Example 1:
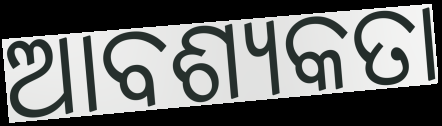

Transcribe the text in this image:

ଆବଶ୍ୟକତା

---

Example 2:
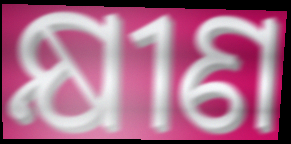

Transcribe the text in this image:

କ୍ଷୀଣ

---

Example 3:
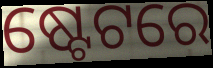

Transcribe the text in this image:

ଷ୍ଟେଟରେ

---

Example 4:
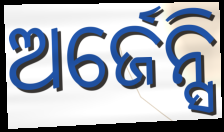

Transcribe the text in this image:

ଅର୍ଜେନ୍ସି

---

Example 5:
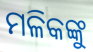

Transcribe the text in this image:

ମଳିକଙ୍କୁ